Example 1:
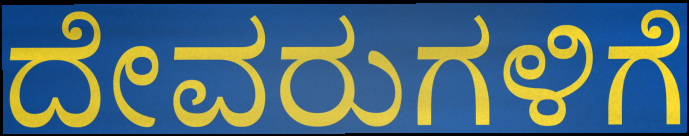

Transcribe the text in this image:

ದೇವರುಗಳಿಗೆ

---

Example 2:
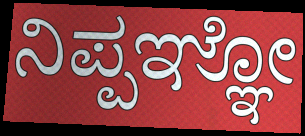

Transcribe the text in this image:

ನಿಪ್ಪಞ್ಞೋ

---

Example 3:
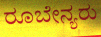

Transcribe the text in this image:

ರೂಬೇನ್ಯರು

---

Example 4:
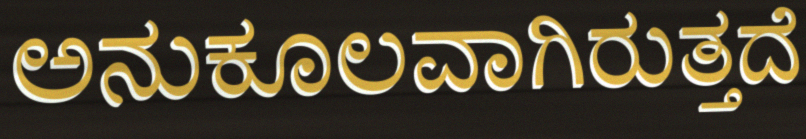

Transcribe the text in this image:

ಅನುಕೂಲವಾಗಿರುತ್ತದೆ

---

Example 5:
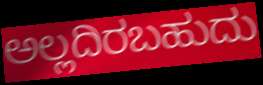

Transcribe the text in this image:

ಅಲ್ಲದಿರಬಹುದು